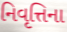
નિવૃત્તિના